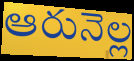
ఆరునెల్ల